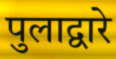
पुलाद्वारे